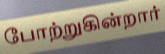
போற்றுகின்றார்